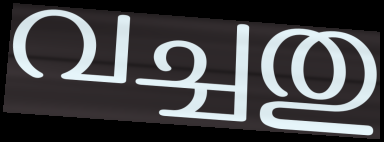
വച്ചതു